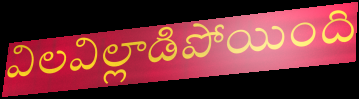
విలవిల్లాడిపోయింది